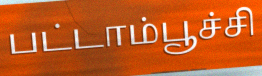
பட்டாம்பூச்சி